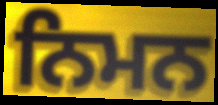
ਨਿਮਨ